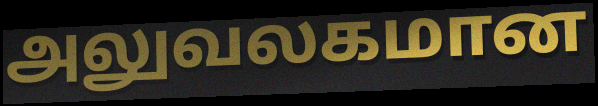
அலுவலகமான